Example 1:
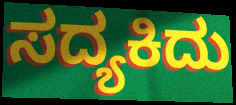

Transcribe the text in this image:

ಸದ್ಯಕಿದು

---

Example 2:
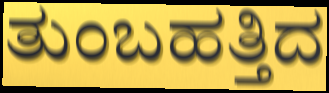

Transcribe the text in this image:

ತುಂಬಹತ್ತಿದ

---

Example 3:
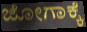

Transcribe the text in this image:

ಜೋಗಾಕ್ಕೆ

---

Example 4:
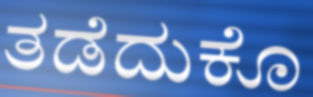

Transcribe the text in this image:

ತಡೆದುಕೊ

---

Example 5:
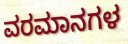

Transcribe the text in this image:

ವರಮಾನಗಳ